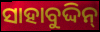
ସାହାବୁଦ୍ଦିନ୍